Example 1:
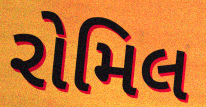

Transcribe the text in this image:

રોમિલ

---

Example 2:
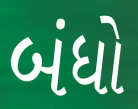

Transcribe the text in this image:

બંધો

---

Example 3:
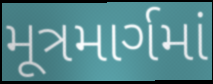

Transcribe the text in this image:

મૂત્રમાર્ગમાં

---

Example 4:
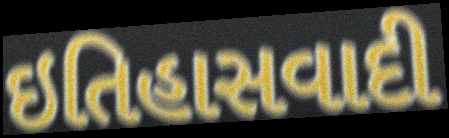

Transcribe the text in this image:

ઇતિહાસવાદી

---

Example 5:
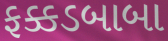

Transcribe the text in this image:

ફક્કડબાબા